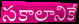
సకాలానికే